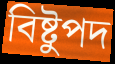
বিষ্টুপদ